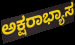
ಅಕ್ಷರಾಭ್ಯಾಸ